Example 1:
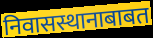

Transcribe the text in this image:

निवासस्थानाबाबत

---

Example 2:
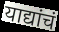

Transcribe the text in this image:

याद्यांचं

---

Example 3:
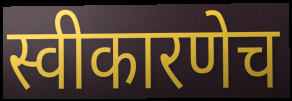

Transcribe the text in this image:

स्वीकारणेच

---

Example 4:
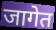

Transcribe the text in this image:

जागेत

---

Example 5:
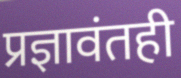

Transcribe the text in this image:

प्रज्ञावंतही